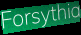
Forsythia